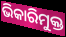
ଭିକାରିମୁକ୍ତ